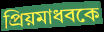
প্রিয়মাধবকে